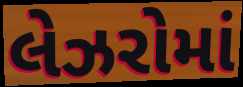
લેઝરોમાં